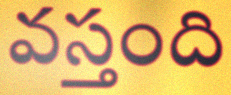
వస్తంది